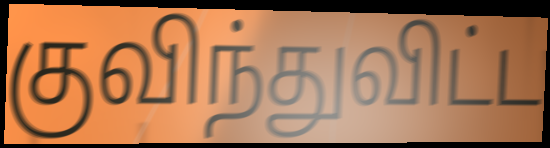
குவிந்துவிட்ட